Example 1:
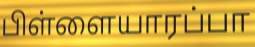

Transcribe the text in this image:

பிள்ளையாரப்பா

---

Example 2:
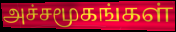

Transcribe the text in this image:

அச்சமூகங்கள்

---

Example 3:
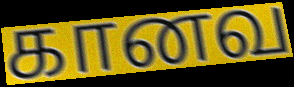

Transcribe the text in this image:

கானவ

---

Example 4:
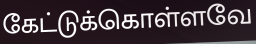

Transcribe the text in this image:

கேட்டுக்கொள்ளவே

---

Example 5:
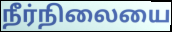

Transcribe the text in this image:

நீர்நிலையை